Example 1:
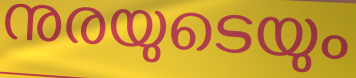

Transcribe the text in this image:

നുരയുടെയും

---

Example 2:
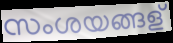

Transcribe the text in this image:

സംശയങ്ങള്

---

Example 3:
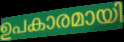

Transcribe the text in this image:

ഉപകാരമായി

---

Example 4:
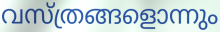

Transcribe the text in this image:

വസ്ത്രങ്ങളൊന്നും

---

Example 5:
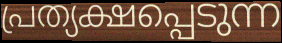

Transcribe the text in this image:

പ്രത്യക്ഷപ്പെടുന്ന